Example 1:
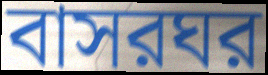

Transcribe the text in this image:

বাসরঘর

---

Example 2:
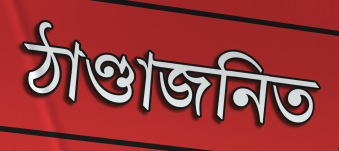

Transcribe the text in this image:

ঠাণ্ডাজনিত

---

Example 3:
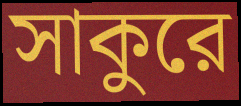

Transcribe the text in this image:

সাকুরে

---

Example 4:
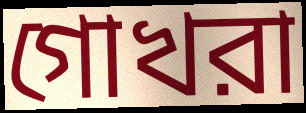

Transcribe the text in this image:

গোখরা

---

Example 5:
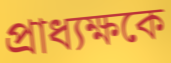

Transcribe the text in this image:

প্রাধ্যক্ষকে